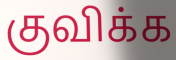
குவிக்க